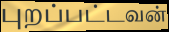
புறப்பட்டவன்